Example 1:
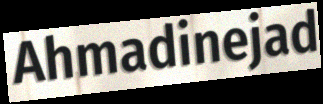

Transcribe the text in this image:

Ahmadinejad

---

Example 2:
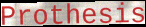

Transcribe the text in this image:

Prothesis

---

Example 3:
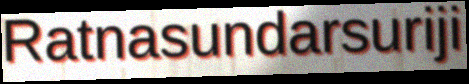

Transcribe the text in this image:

Ratnasundarsuriji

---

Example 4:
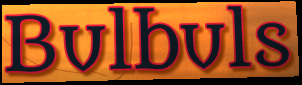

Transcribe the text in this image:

Bulbuls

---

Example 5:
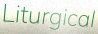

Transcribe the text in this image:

Liturgical